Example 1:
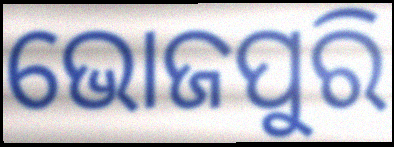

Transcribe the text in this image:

ଭୋଜପୁରି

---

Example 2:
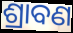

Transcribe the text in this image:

ଶ୍ରାବଣ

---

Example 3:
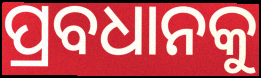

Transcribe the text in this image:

ପ୍ରବଧାନକୁ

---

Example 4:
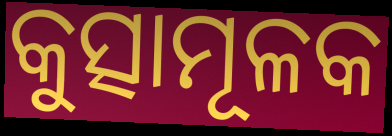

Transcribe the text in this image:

କୁତ୍ସାମୂଳକ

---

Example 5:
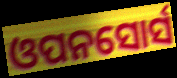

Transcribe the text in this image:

ଓପନସୋର୍ସ